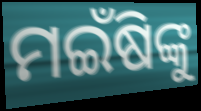
ମଇଁଷିଙ୍କୁ